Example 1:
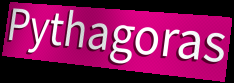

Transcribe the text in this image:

Pythagoras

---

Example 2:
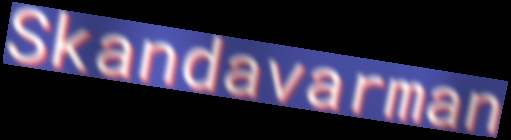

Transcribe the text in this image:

Skandavarman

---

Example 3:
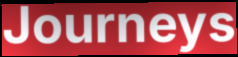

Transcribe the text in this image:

Journeys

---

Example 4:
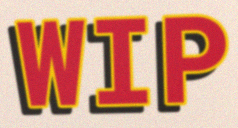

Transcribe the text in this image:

WIP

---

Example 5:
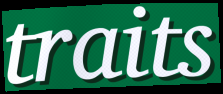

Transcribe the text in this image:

traits